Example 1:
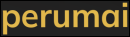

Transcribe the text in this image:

perumai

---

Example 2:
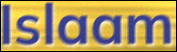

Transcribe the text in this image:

Islaam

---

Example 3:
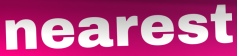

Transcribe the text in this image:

nearest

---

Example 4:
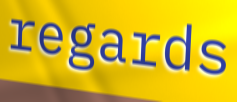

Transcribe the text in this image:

regards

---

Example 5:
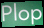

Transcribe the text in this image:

Plop